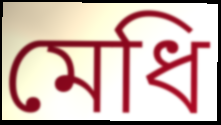
মেধি